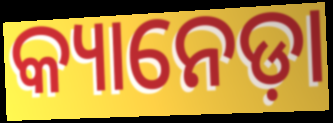
କ୍ୟାନେଡ଼ା